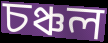
চঞ্চল